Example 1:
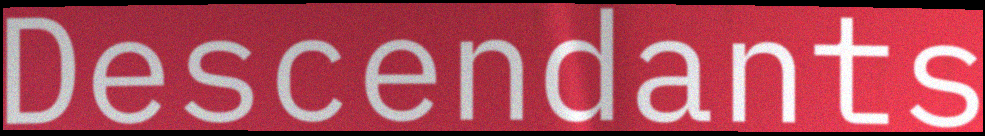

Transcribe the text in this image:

Descendants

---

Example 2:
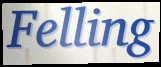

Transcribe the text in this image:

Felling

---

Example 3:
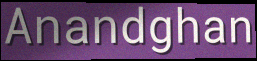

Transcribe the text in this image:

Anandghan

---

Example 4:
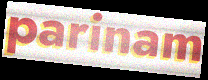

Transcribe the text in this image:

parinam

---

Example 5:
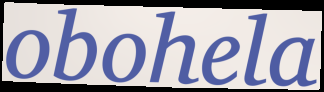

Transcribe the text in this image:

obohela